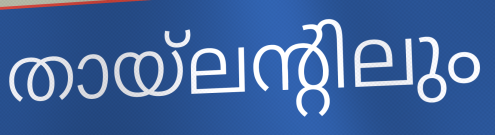
തായ്ലന്റിലും